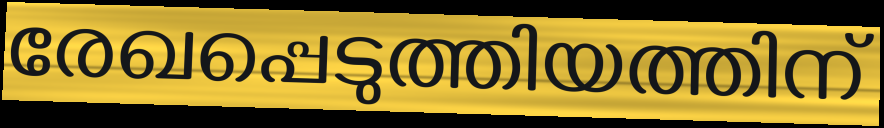
രേഖപ്പെടുത്തിയത്തിന്